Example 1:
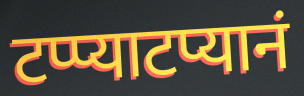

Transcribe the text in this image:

टप्प्याटप्यानं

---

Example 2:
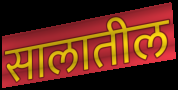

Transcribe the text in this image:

सालातील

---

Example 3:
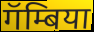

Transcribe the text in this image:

गॅम्बिया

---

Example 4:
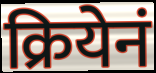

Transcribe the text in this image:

क्रियेनं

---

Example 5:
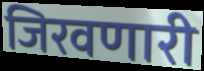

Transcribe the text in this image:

जिरवणारी